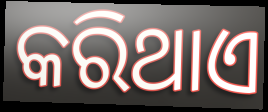
କରିଥାଏ